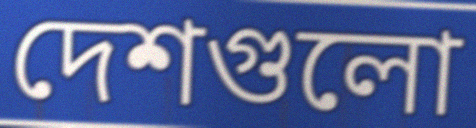
দেশগুলো